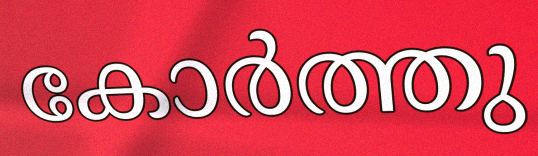
കോർത്തു